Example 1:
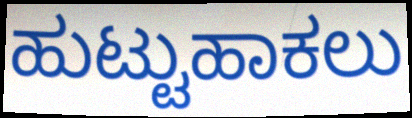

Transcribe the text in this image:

ಹುಟ್ಟುಹಾಕಲು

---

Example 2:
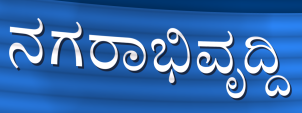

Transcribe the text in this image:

ನಗರಾಭಿವೃದ್ದಿ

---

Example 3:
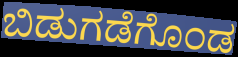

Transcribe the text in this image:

ಬಿಡುಗಡೆಗೊಂಡ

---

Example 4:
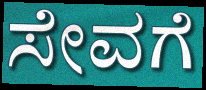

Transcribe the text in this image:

ಸೇವಗೆ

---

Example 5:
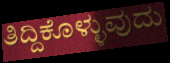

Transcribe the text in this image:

ತಿದ್ದಿಕೊಳ್ಳುವುದು